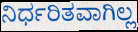
ನಿರ್ಧರಿತವಾಗಿಲ್ಲ